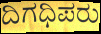
ದಿಗಧಿಪರು